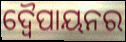
ଦ୍ୱୈପାୟନର